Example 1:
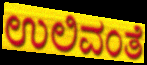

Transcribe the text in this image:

ಉಲಿವಂತೆ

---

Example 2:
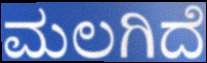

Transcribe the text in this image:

ಮಲಗಿದೆ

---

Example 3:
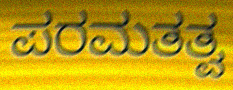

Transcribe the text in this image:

ಪರಮತತ್ವ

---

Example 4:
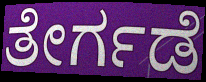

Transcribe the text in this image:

ತೇರ್ಗಡೆ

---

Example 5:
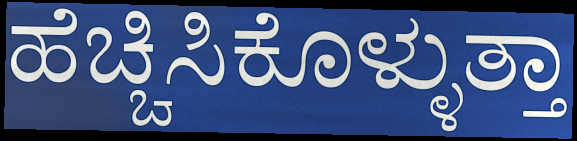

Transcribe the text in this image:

ಹೆಚ್ಚಿಸಿಕೊಳ್ಳುತ್ತಾ